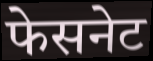
फेसनेट